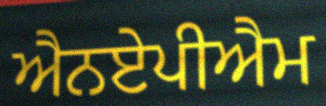
ਐਨਏਪੀਐਮ